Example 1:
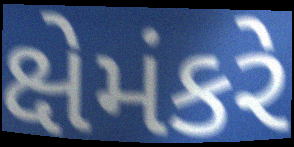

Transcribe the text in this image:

ક્ષેમંકરે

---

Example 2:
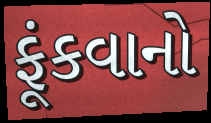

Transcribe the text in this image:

ફૂંકવાનો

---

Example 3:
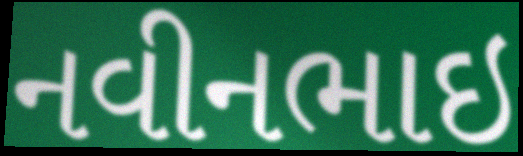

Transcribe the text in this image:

નવીનભાઇ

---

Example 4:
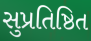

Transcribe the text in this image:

સુપ્રતિષ્ઠિત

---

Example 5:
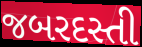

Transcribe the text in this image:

જબરદસ્તી